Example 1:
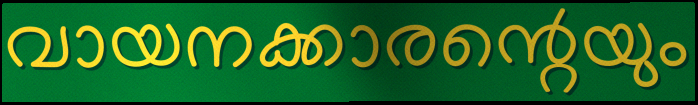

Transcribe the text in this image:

വായനക്കാരന്റെയും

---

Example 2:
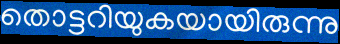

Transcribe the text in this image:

തൊട്ടറിയുകയായിരുന്നു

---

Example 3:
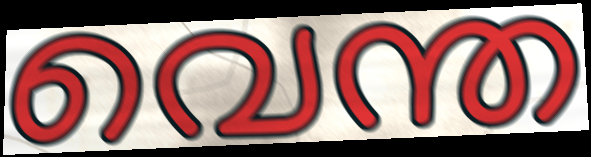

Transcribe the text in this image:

വെന്ത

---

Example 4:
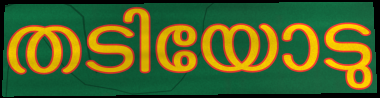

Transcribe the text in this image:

തടിയോടു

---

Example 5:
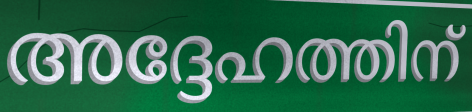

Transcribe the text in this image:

അദ്ദേഹത്തിന്